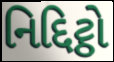
નિદ્દિટ્ઠો